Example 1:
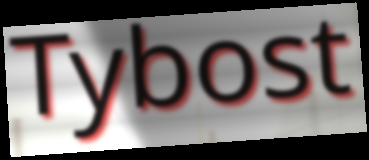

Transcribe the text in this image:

Tybost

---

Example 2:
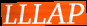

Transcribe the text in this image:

LLLAP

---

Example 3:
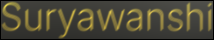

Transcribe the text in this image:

Suryawanshi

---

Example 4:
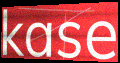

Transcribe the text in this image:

kase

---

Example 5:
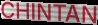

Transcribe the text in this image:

CHINTAN